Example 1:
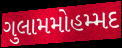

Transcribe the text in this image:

ગુલામમોહમ્મદ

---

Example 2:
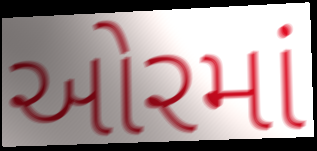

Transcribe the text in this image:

ઓરમાં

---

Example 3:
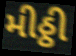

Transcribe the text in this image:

મીઠ્ઠી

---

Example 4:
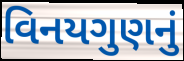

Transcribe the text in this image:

વિનયગુણનું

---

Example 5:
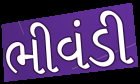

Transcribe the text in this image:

ભીવંડી